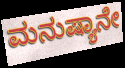
ಮನುಷ್ಯಾನೇ